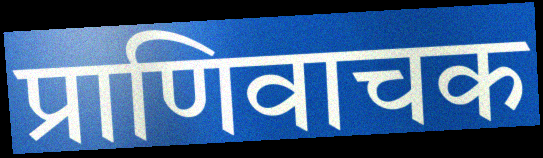
प्राणिवाचक